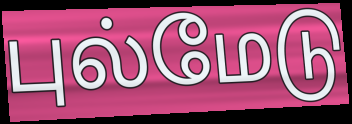
புல்மேடு